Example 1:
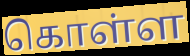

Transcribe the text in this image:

கொள்ள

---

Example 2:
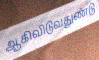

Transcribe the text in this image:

ஆகிவிடுவதுண்டு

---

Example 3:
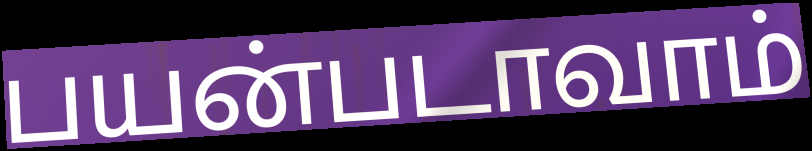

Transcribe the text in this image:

பயன்படாவாம்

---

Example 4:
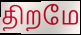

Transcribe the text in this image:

திறமே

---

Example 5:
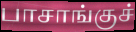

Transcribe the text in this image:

பாசாங்குச்